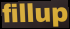
fillup